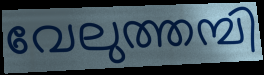
വേലുത്തമ്പി